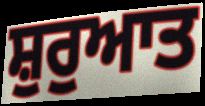
ਸ਼ੁਰੁਆਤ